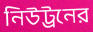
নিউট্রনের